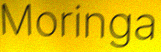
Moringa